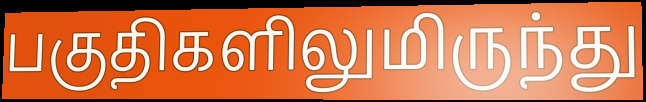
பகுதிகளிலுமிருந்து